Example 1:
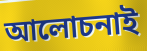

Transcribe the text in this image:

আলোচনাই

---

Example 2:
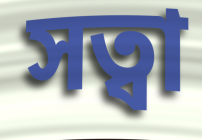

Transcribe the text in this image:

সত্বা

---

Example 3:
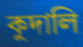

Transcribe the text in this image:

কুদালি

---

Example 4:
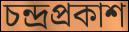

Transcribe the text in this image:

চন্দ্ৰপ্ৰকাশ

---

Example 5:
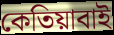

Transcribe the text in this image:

কেতিয়াবাই